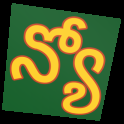
న్యో